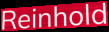
Reinhold